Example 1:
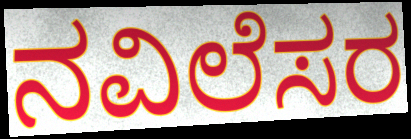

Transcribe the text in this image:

ನವಿಲೆಸರ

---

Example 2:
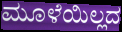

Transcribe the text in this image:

ಮೂಳೆಯಿಲ್ಲದ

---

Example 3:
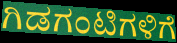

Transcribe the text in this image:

ಗಿಡಗಂಟಿಗಳಿಗೆ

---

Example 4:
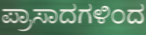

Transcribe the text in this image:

ಪ್ರಾಸಾದಗಳಿಂದ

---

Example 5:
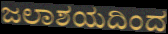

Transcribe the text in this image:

ಜಲಾಶಯದಿಂದ